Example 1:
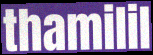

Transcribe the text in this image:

thamilil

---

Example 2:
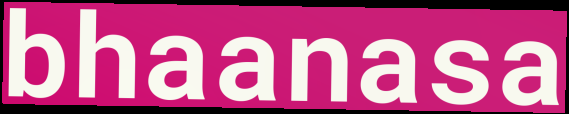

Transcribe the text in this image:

bhaanasa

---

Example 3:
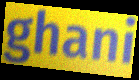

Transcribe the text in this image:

ghani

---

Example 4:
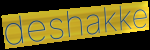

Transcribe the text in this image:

deshakke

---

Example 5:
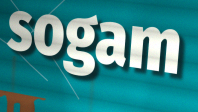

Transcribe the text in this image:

sogam